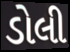
ડોલી